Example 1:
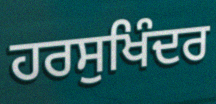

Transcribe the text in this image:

ਹਰਸੁਖਿੰਦਰ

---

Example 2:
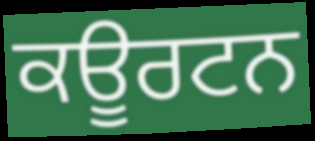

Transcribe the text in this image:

ਕਊਰਟਨ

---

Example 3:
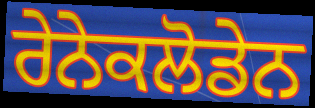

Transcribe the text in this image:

ਰੇਨੇਕਲੋਡੇਨ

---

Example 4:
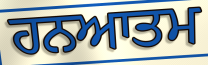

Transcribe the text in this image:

ਹਨਆਤਮ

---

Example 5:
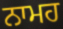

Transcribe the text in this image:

ਨਾਮਹ